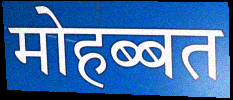
मोहब्बत